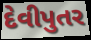
દેવીપુતર